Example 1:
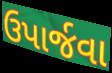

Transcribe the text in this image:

ઉપાર્જવા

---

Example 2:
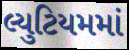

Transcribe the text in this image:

લ્યુટિયમમાં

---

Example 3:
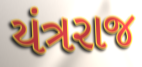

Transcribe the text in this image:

યંત્રરાજ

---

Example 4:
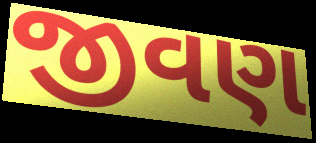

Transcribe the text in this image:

જીવણ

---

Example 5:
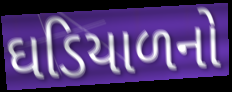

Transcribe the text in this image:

ઘડિયાળનો